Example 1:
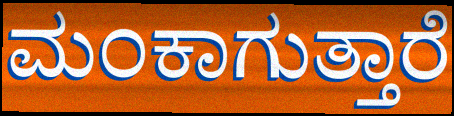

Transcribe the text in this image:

ಮಂಕಾಗುತ್ತಾರೆ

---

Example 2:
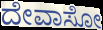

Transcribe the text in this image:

ದೇವಾಸೋ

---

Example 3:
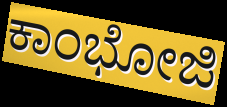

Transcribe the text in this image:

ಕಾಂಭೋಜಿ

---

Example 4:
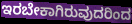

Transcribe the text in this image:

ಇರಬೇಕಾಗಿರುವುದರಿಂದ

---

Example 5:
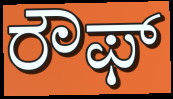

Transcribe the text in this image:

ರೌಫ್